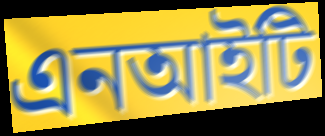
এনআইটি